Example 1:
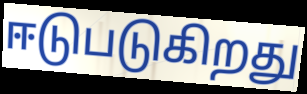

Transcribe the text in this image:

ஈடுபடுகிறது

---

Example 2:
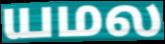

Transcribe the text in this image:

யமல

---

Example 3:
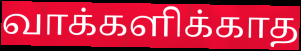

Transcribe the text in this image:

வாக்களிக்காத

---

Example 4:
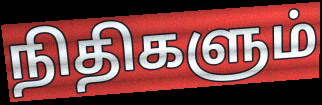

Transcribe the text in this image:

நிதிகளும்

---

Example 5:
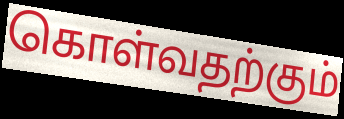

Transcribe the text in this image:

கொள்வதற்கும்